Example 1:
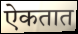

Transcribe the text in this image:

ऐकतात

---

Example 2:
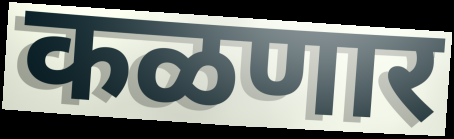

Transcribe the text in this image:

कळणार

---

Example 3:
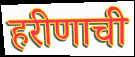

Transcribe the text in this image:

हरीणाची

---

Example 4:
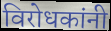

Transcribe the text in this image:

विरोधकांनी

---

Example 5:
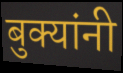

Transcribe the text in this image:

बुक्यांनी